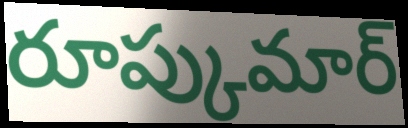
రూప్కుమార్